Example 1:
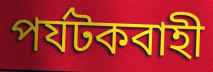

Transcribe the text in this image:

পর্যটকবাহী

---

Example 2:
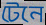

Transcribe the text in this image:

টেনে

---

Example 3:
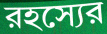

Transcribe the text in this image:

রহস্যের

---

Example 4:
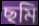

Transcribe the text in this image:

ছমি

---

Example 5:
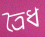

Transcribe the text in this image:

ত্রৈধ